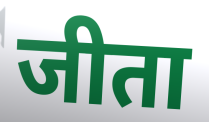
जीता